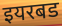
इयरबड